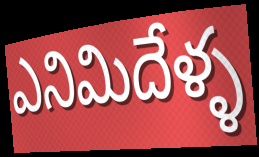
ఎనిమిదేళ్ళ